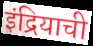
इंद्रियाची